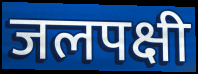
जलपक्षी